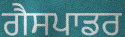
ਗੈਸਪਾਡਰ